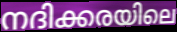
നദിക്കരയിലെ